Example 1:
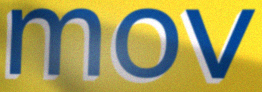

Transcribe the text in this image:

mov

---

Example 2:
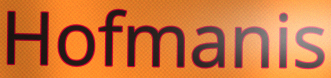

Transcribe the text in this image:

Hofmanis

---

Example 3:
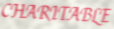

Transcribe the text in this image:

CHARITABLE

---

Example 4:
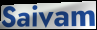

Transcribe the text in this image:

Saivam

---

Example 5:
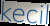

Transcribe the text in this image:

kecil